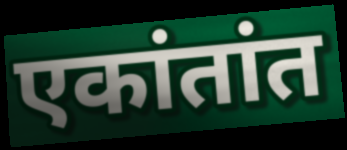
एकांतांत